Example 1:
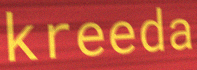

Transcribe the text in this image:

kreeda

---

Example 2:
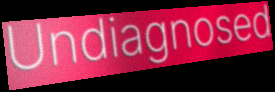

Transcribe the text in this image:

Undiagnosed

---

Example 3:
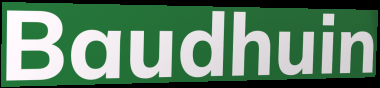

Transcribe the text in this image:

Baudhuin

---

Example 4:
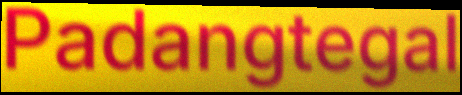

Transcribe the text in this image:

Padangtegal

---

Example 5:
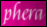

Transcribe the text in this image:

phera